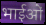
भाईओं